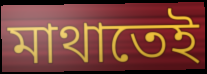
মাথাতেই